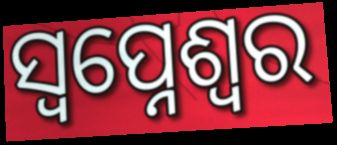
ସ୍ଵପ୍ନେଶ୍ଵର